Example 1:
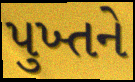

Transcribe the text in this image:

પુખ્તને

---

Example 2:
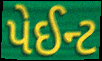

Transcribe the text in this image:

પેઈન્ટ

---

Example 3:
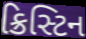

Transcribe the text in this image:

ક્રિસ્ટિન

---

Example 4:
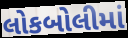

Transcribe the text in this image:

લોકબોલીમાં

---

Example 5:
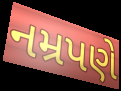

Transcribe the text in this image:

નમ્રપણે